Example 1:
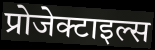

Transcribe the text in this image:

प्रोजेक्टाइल्स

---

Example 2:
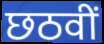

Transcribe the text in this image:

छठवीं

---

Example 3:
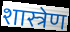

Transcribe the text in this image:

शास्त्रेण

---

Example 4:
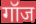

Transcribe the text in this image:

गॉज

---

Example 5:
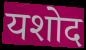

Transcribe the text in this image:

यशोद